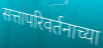
सत्तापरिवर्तनाच्या